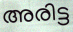
അരിട്ട